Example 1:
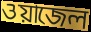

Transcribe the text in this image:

ওয়াজেল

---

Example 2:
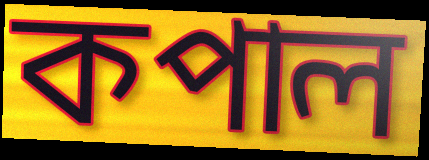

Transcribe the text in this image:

কপাল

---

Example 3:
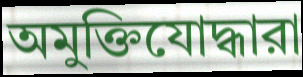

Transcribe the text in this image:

অমুক্তিযোদ্ধারা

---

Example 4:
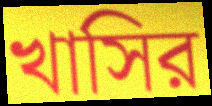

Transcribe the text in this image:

খাসির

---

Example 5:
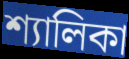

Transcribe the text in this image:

শ্যালিকা